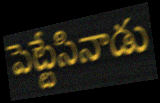
పెట్టేసినాడు